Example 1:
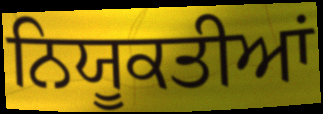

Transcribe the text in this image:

ਨਿਯੂਕਤੀਆਂ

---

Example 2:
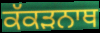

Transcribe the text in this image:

ਕੱਕੜਨਾਥ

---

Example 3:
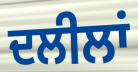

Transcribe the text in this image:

ਦਲੀਲਾਂ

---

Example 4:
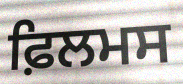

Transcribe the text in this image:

ਫ਼ਿਲਮਸ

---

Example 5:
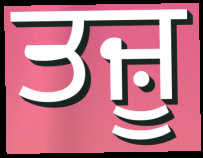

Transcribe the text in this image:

ਤਜ਼ੂ